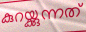
കുറയ്ക്കുന്നത്